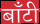
बाँटी